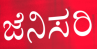
ಜೆನಿಸರಿ